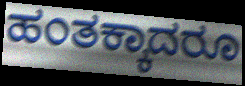
ಹಂತಕ್ಕಾದರೂ